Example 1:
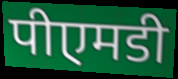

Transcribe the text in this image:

पीएमडी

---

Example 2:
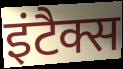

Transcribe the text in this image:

इंटैक्स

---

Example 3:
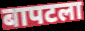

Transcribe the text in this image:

बापटला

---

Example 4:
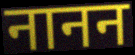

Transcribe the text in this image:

नानन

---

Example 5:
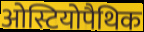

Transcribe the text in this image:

ओस्टियोपैथिक